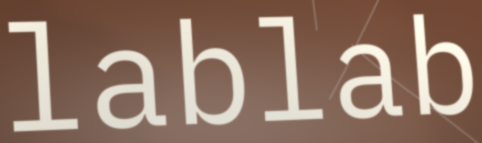
lablab